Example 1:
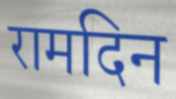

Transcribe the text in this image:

रामदिन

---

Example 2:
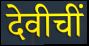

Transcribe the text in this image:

देवीचीं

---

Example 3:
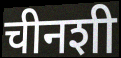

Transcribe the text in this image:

चीनशी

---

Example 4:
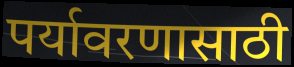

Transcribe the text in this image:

पर्यावरणासाठी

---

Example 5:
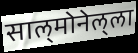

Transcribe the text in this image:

साल्मोनेल्ला